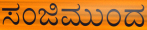
ಸಂಜಿಮುಂದ